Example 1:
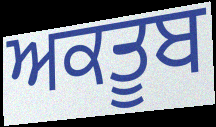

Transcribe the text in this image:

ਅਕਤੂਬ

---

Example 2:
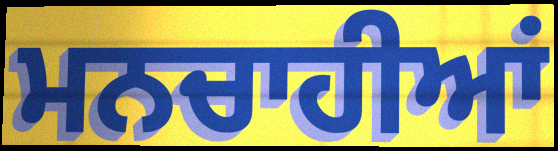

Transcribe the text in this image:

ਮਨਚਾਹੀਆਂ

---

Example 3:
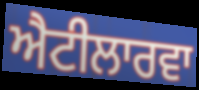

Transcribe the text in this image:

ਐਟੀਲਾਰਵਾ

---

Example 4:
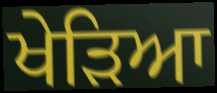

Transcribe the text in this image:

ਖੇੜਿਆ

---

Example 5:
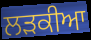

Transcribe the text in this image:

ਲੜਕੀਆ